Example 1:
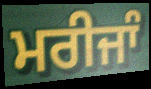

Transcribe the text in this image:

ਮਰੀਜਾੰ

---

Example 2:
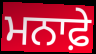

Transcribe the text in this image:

ਮਨਾਫ਼ੇ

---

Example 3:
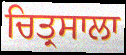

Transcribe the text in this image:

ਚਿਤ੍ਰਸਾਲਾ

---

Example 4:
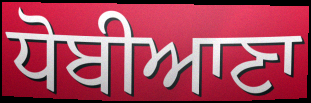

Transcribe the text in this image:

ਧੋਬੀਆਣਾ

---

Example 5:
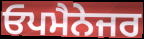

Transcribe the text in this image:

ਓਪਮੈਨੇਜਰ